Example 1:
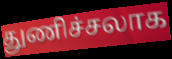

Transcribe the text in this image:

துணிச்சலாக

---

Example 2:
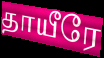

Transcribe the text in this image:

தாயீரே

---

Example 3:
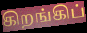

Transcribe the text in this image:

கிறங்கிப்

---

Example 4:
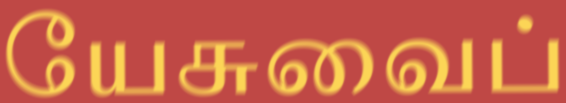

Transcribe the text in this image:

யேசுவைப்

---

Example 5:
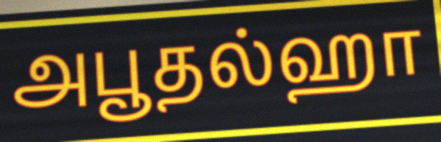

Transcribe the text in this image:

அபூதல்ஹா